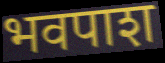
भवपाश